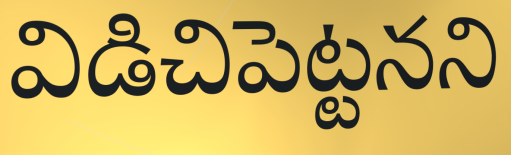
విడిచిపెట్టనని